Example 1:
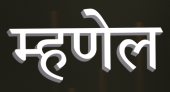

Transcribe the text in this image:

म्हणेल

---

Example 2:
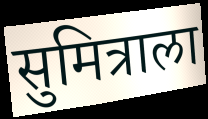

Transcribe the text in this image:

सुमित्राला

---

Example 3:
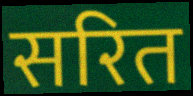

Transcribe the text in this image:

सरित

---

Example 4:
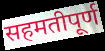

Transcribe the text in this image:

सहमतीपूर्ण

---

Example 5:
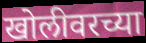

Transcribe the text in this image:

खोलीवरच्या